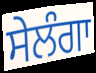
ਸੇਲੰਗਾ